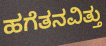
ಹಗೆತನವಿತ್ತು